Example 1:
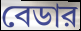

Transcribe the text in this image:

বেডার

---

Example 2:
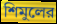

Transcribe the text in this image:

শিমুলের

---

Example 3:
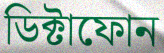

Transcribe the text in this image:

ডিক্টাফোন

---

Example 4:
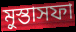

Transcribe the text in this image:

মুস্তাসফা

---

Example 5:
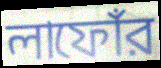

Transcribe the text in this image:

লাফোঁর